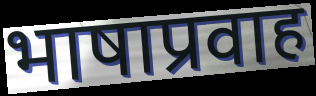
भाषाप्रवाह